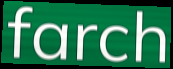
farch